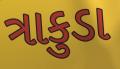
ત્રાકુડા